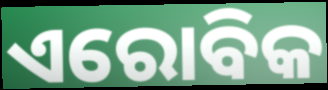
ଏରୋବିକ